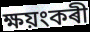
ক্ষয়ংকৰী